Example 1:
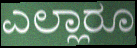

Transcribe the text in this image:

ಎಲ್ಲಾರೂ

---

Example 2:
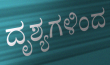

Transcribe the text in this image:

ದೃಶ್ಯಗಳಿಂದ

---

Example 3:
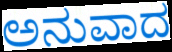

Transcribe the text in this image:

ಅನುವಾದ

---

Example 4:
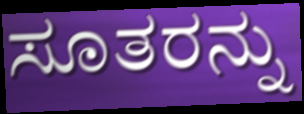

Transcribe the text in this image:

ಸೂತರನ್ನು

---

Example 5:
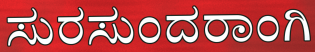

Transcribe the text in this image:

ಸುರಸುಂದರಾಂಗಿ